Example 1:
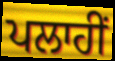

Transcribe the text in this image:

ਪਲਾਹੀਂ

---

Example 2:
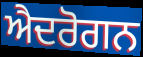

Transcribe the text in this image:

ਐਦਰੋਗਨ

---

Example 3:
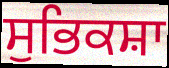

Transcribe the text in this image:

ਸੁਭਿਕਸ਼ਾ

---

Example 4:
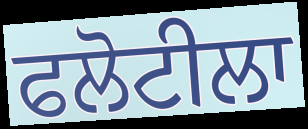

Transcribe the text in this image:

ਫਲੋਟੀਲਾ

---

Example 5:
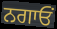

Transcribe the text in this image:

ਨਗਾਓਂ